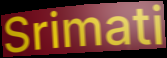
Srimati